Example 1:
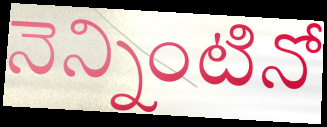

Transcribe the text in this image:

నెన్నింటినో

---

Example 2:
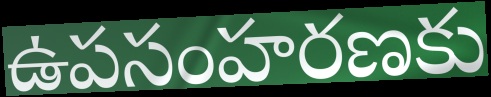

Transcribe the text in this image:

ఉపసంహరణకు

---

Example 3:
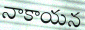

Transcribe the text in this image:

నాకాయన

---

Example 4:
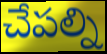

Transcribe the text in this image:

చేపల్ని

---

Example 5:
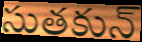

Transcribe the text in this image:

సుతకున్